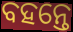
ବହନ୍ତେ